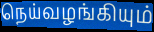
நெய்வழங்கியும்